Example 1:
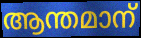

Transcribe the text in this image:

ആന്തമാന്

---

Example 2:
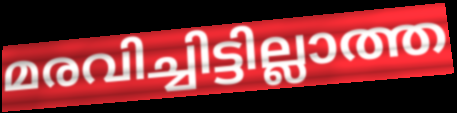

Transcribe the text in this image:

മരവിച്ചിട്ടില്ലാത്ത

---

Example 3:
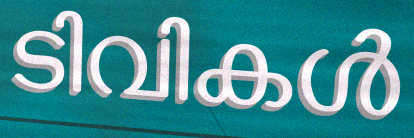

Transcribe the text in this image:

ടിവികൾ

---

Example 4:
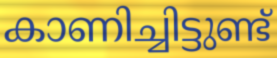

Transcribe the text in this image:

കാണിച്ചിട്ടുണ്ട്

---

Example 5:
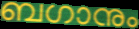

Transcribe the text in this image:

ബഗാനും